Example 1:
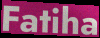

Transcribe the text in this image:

Fatiha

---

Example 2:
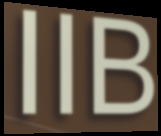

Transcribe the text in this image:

IIB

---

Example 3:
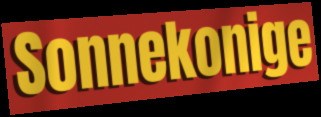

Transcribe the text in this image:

Sonnekonige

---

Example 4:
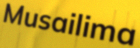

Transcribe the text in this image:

Musailima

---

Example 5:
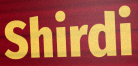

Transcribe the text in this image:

Shirdi